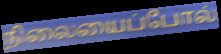
நிலையைப்போல்